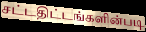
சட்டதிட்டங்களின்படி